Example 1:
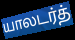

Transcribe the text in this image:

யாலடர்த்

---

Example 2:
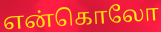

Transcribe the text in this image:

என்கொலோ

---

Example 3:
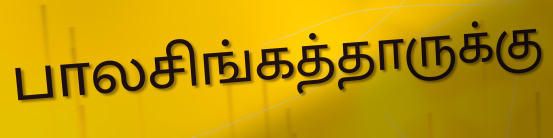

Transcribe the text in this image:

பாலசிங்கத்தாருக்கு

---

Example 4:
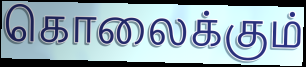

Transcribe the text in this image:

கொலைக்கும்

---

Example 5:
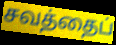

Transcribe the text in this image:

சவத்தைப்